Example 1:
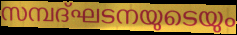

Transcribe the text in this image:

സമ്പദ്ഘടനയുടെയും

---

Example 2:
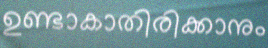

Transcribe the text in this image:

ഉണ്ടാകാതിരിക്കാനും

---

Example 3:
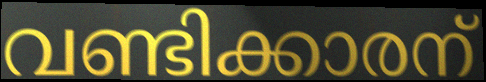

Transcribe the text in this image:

വണ്ടിക്കാരന്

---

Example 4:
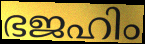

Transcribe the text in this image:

ഭജഹിം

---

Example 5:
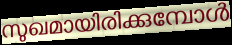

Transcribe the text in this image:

സുഖമായിരിക്കുമ്പോൾ